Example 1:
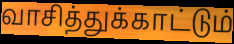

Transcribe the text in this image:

வாசித்துக்காட்டும்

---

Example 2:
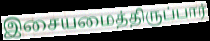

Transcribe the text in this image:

இசையமைத்திருப்பார்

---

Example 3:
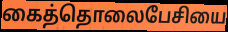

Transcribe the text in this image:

கைத்தொலைபேசியை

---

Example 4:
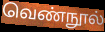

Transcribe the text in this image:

வெண்நூல்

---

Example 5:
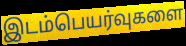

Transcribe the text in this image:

இடம்பெயர்வுகளை